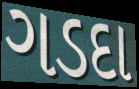
ગડદા